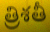
త్రిశతీ